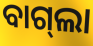
ବାଗ୍‌ଲା